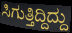
ಸಿಗುತ್ತಿದ್ದಿದ್ದು